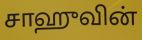
சாஹுவின்